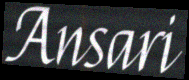
Ansari